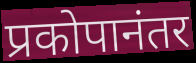
प्रकोपानंतर